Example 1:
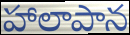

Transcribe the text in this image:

హాలాపాన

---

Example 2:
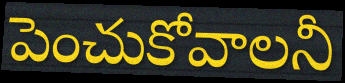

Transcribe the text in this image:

పెంచుకోవాలనీ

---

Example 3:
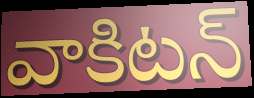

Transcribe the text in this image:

వాకిటన్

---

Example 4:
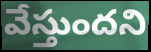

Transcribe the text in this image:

వేస్తుందని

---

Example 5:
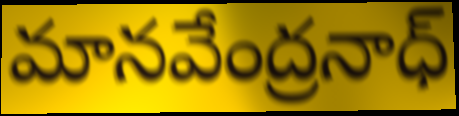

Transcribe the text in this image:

మానవేంద్రనాధ్